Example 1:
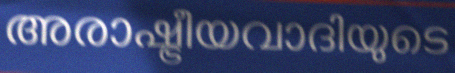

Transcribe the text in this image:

അരാഷ്ട്രീയവാദിയുടെ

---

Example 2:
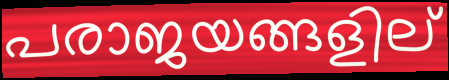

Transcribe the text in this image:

പരാജയങ്ങളില്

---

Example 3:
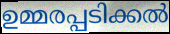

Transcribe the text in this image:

ഉമ്മരപ്പടിക്കൽ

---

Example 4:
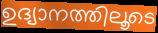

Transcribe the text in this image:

ഉദ്യാനത്തിലൂടെ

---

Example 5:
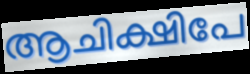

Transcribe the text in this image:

ആചിക്ഷിപേ